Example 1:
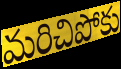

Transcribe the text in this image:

మరిచిపోకు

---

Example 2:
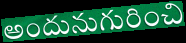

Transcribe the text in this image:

అందునుగురించి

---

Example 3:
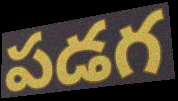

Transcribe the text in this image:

పడగ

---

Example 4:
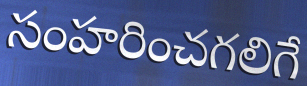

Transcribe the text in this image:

సంహరించగలిగే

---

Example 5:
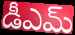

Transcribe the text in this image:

డీఎమ్